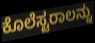
ಕೊಲೆಸ್ಟರಾಲನ್ನು